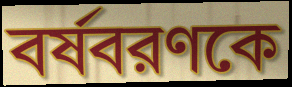
বর্ষবরণকে